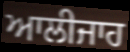
ਆਲੀਜਾਹ